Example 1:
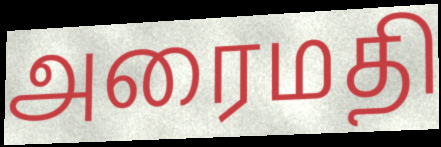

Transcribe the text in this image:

அரைமதி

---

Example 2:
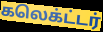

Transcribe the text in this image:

கலெக்ட்டர்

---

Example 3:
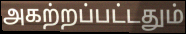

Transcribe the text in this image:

அகற்றப்பட்டதும்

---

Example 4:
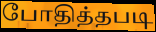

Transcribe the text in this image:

போதித்தபடி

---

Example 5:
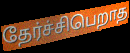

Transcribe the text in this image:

தேர்ச்சிபெறாத